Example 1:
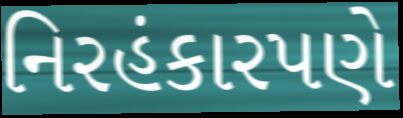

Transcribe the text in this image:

નિરહંકારપણે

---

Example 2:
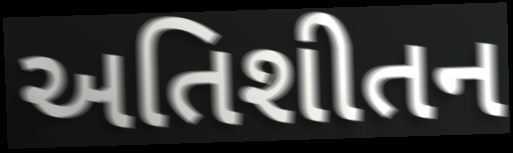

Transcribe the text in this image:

અતિશીતન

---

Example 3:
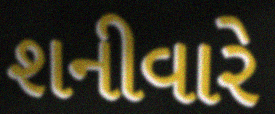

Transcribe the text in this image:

શનીવારે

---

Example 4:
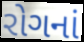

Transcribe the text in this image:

રોગનાં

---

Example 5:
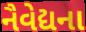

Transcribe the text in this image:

નૈવેદ્યના